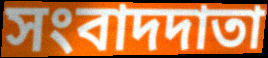
সংবাদদাতা